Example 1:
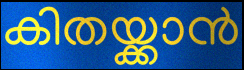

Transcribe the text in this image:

കിതയ്ക്കാൻ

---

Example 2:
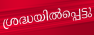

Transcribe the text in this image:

ശ്രദ്ധയിൽപ്പെട്ടു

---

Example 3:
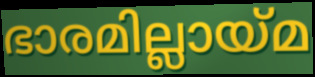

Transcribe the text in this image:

ഭാരമില്ലായ്മ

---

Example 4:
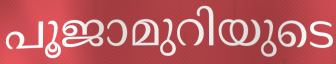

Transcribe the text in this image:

പൂജാമുറിയുടെ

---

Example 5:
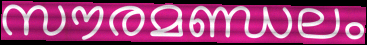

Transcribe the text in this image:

സൗരമണ്ഡലം